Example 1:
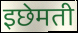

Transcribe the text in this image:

इछेमती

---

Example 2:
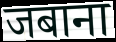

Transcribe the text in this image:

जबाना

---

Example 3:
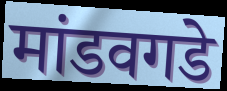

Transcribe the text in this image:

मांडवगडे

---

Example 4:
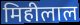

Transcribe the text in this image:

मिहीलाल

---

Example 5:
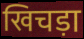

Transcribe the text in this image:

खिचड़ा